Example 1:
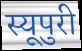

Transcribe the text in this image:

स्यूपुरी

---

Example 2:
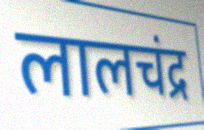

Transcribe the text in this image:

लालचंद्र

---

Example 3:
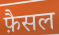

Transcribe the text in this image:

फ़ैसल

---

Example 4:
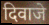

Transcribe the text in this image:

दिवाजे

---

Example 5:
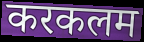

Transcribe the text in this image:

करकलम